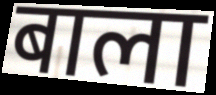
बाला